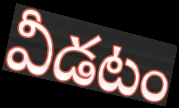
వీడటం